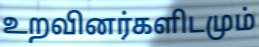
உறவினர்களிடமும்